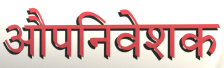
औपनिवेशक